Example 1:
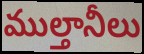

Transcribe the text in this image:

ముల్తానీలు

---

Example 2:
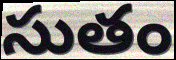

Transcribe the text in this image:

సుతం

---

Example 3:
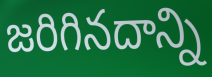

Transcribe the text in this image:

జరిగినదాన్ని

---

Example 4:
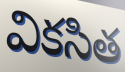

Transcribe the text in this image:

వికసిత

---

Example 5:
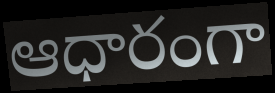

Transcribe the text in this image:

ఆధారంగా